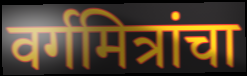
वर्गमित्रांचा